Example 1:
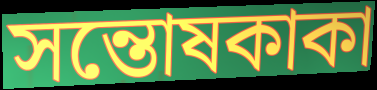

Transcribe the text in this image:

সন্তোষকাকা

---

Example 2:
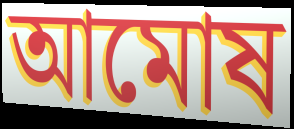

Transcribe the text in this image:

আমোষ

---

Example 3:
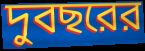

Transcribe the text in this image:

দুবছরের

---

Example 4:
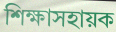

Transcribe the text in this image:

শিক্ষাসহায়ক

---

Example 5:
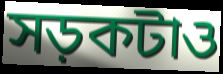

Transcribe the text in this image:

সড়কটাও